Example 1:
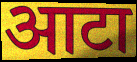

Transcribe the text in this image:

आटा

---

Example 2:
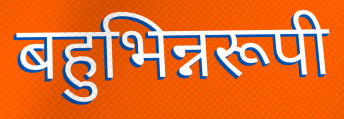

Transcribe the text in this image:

बहुभिन्नरूपी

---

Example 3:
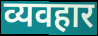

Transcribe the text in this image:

व्यवहार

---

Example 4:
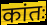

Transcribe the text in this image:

कांतः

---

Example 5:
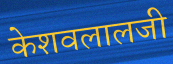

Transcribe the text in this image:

केशवलालजी